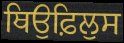
ਥਿਉਫ਼ਿਲੁਸ